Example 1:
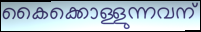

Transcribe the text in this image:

കൈക്കൊള്ളുന്നവന്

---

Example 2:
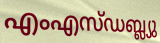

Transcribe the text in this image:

എംഎസ്ഡബ്ല്യു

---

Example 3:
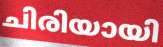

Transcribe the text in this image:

ചിരിയായി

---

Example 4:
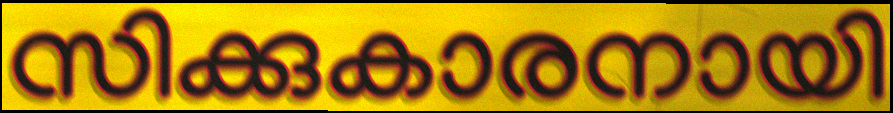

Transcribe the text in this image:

സിക്കുകാരനായി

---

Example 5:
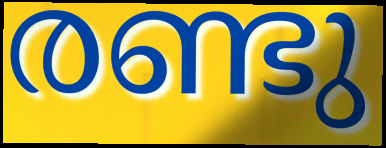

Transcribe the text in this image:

രണ്ടു